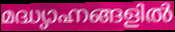
മദ്ധ്യാഹ്നങ്ങളിൽ